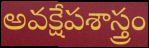
అవక్షేపశాస్త్రం